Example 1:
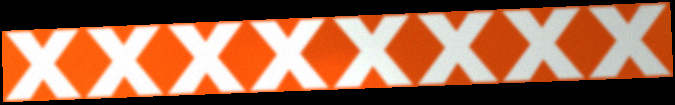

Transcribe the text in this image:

xxxxxxxx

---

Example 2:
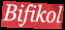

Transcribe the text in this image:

Bifikol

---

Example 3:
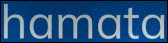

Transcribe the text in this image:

hamata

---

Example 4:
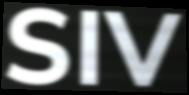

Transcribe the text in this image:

SIV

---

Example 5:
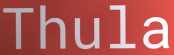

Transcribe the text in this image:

Thula